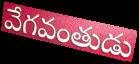
వేగవంతుడు